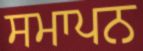
ਸਮਾਪਨ